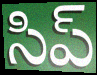
సిప్